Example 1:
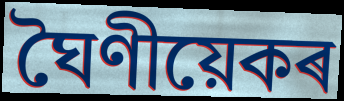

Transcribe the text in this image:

ঘৈণীয়েকৰ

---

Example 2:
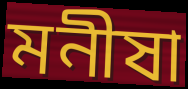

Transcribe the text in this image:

মনীষা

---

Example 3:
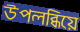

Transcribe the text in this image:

উপলব্ধিয়ে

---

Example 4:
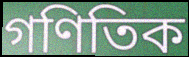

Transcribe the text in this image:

গণিতিক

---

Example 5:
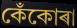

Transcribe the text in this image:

কেঁকোৰা